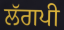
ਲੱਗਪੀ